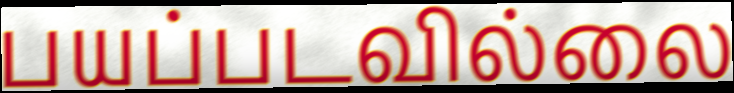
பயப்படவில்லை